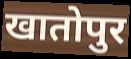
खातोपुर